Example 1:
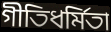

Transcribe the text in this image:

গীতিধর্মিতা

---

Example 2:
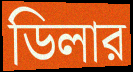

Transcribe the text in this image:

ডিলার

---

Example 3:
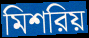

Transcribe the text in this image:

মিশরিয়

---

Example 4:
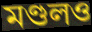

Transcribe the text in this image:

মণ্ডলও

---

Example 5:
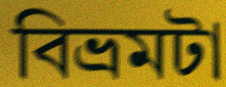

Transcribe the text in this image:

বিভ্রমটা